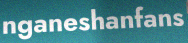
nganeshanfans